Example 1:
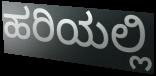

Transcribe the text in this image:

ಹರಿಯಲ್ಲಿ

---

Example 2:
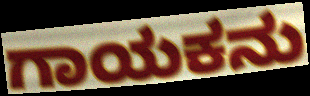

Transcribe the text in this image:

ಗಾಯಕನು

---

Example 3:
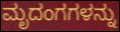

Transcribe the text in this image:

ಮೃದಂಗಗಳನ್ನು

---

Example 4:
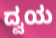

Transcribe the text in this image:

ದ್ವಯ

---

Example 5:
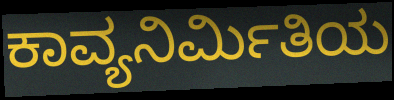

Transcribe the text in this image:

ಕಾವ್ಯನಿರ್ಮಿತಿಯ